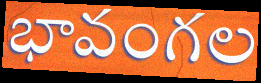
భావంగల